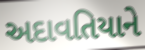
અદાવતિયાને